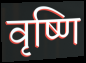
वृष्णि